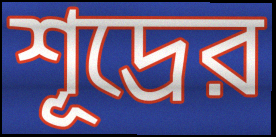
শূদ্রের